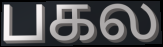
பகல